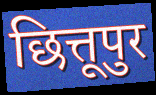
छित्तूपुर